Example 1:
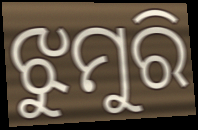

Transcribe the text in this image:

ଝୁମୁରି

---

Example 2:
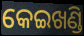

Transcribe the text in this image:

କେଇଖଣ୍ଡି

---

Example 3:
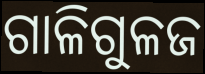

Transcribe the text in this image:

ଗାଳିଗୁଳଜ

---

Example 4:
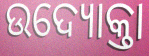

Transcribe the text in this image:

ଉଦ୍ୟୋକ୍ତା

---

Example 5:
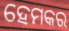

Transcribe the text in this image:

ହେମକର